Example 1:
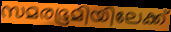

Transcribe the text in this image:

സമരഭൂമിയിലേക്ക്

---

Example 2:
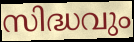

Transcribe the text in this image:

സിദ്ധവും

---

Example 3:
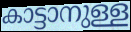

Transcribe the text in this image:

കാട്ടാനുള്ള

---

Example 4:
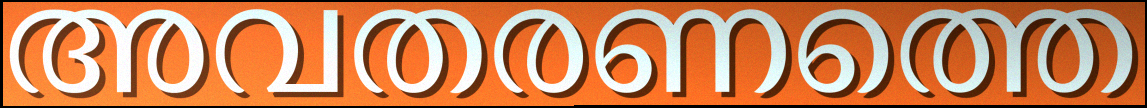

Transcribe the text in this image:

അവതരണത്തെ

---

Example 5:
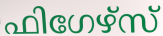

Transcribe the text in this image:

ഫിഗേഴ്സ്